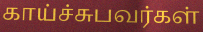
காய்ச்சுபவர்கள்